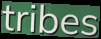
tribes